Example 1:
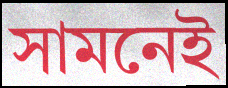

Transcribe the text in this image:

সামনেই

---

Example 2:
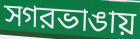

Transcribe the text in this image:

সগরভাঙায়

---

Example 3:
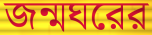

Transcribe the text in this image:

জন্মঘরের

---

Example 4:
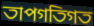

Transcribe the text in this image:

তাপগতিগত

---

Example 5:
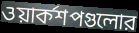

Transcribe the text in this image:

ওয়ার্কশপগুলোর